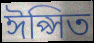
ঈপ্সিত